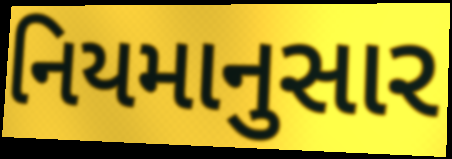
નિયમાનુસાર